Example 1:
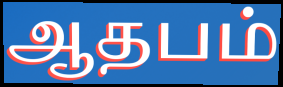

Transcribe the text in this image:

ஆதபம்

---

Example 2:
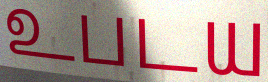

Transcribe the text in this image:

உபடய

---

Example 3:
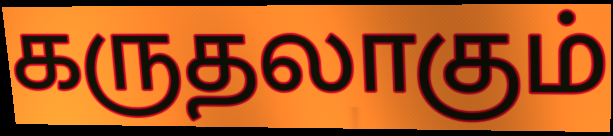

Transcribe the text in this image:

கருதலாகும்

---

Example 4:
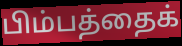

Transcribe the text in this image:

பிம்பத்தைக்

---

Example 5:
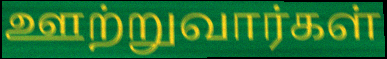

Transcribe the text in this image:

ஊற்றுவார்கள்